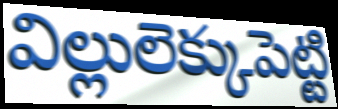
విల్లులెక్కుపెట్టి